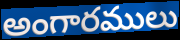
అంగారములు